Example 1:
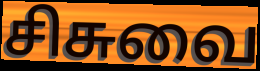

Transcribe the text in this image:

சிசுவை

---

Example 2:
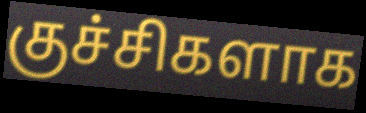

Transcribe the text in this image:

குச்சிகளாக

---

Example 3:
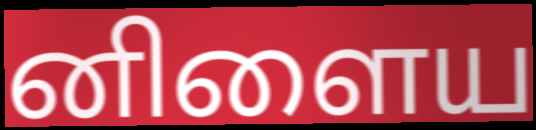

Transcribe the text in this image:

னிளைய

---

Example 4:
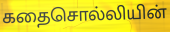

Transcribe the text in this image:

கதைசொல்லியின்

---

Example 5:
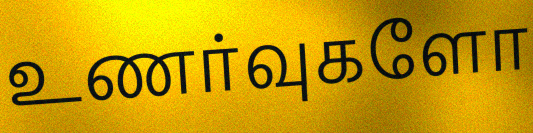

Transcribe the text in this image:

உணர்வுகளோ